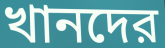
খানদের